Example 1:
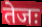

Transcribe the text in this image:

तेजः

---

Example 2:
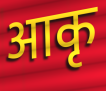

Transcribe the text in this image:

आकृ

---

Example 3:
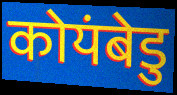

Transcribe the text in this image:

कोयंबेडु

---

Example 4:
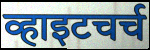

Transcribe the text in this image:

व्हाइटचर्च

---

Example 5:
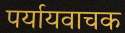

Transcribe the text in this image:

पर्यायवाचक